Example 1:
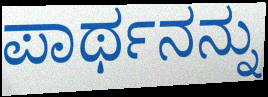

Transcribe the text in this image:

ಪಾರ್ಥನನ್ನು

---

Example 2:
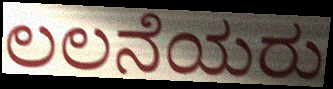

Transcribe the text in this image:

ಲಲನೆಯರು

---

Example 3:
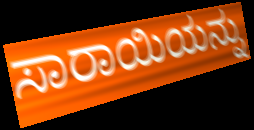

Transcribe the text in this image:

ಸಾರಾಯಿಯನ್ನು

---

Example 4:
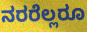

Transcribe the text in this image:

ನರರೆಲ್ಲರೂ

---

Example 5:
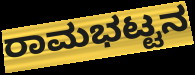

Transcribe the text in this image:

ರಾಮಭಟ್ಟನ